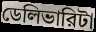
ডেলিভারিটা